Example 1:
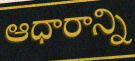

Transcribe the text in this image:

ఆధారాన్ని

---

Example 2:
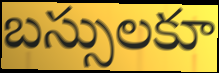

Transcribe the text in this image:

బస్సులకూ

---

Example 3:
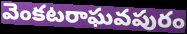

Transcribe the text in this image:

వెంకటరాఘవపురం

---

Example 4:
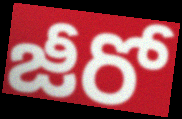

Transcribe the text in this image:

జీరో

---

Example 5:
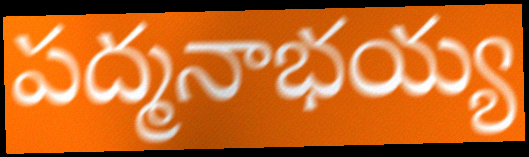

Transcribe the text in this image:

పద్మనాభయ్య